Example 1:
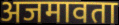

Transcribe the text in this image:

अजमावता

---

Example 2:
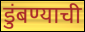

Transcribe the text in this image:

डुंबण्याची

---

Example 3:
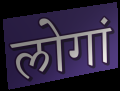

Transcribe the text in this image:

लोगां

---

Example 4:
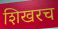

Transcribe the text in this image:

शिखरच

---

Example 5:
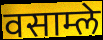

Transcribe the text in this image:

वसाम्ले